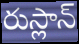
రుస్లాన్